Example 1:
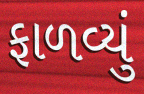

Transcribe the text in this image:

ફાળવ્યું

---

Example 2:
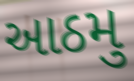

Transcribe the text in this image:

આઠમુ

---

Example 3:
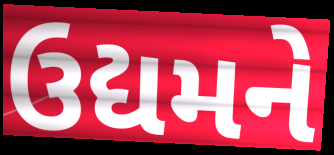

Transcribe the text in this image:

ઉદ્યમને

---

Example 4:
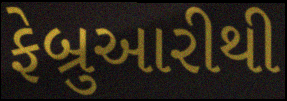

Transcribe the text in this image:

ફેબ્રુઆરીથી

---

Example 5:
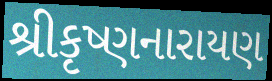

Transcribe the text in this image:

શ્રીકૃષ્ણનારાયણ